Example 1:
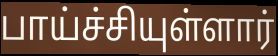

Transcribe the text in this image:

பாய்ச்சியுள்ளார்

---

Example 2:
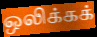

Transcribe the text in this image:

ஒலிக்கக்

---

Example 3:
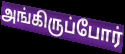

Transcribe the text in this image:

அங்கிருப்போர்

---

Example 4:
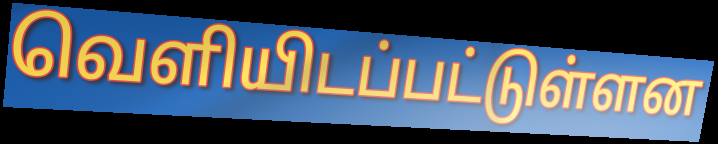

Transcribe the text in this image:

வெளியிடப்பட்டுள்ளன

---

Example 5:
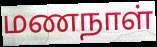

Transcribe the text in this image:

மணநாள்